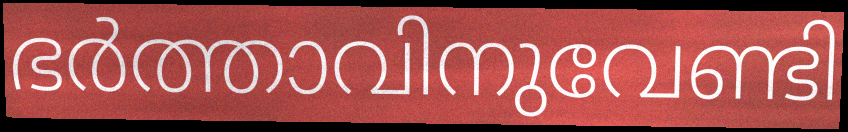
ഭർത്താവിനുവേണ്ടി